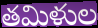
తమిళుల